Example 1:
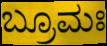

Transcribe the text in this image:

ಬ್ರೂಮಃ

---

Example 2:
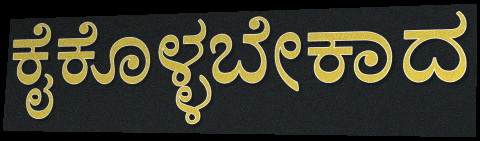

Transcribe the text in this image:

ಕೈಕೊಳ್ಳಬೇಕಾದ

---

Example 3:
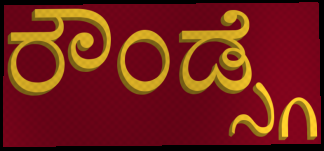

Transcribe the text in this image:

ರೌಂಡ್ಸ್ಗೆ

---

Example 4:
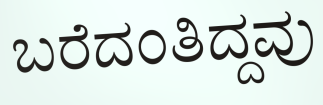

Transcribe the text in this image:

ಬರೆದಂತಿದ್ದವು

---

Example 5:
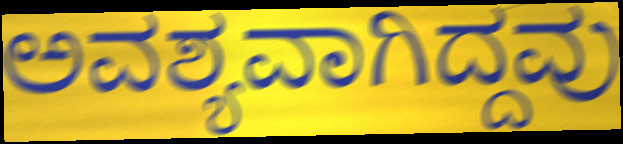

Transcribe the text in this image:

ಅವಶ್ಯವಾಗಿದ್ದವು